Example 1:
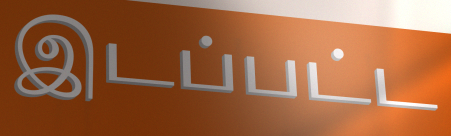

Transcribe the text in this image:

இடப்பட்ட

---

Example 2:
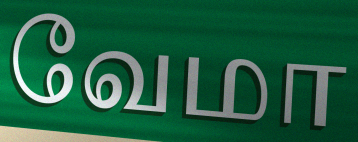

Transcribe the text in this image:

வேமா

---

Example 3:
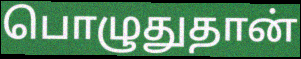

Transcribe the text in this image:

பொழுதுதான்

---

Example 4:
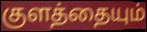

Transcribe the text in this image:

குளத்தையும்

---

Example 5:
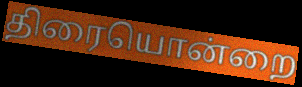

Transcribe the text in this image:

திரையொன்றை